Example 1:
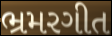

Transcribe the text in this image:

ભ્રમરગીત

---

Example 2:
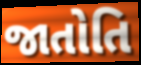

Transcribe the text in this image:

જાતોતિ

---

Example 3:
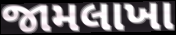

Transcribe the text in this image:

જામલાખા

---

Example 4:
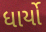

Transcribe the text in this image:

ધાર્યો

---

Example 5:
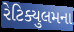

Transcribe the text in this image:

રેટિક્યુલમના